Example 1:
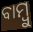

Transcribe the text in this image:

ବାମ୍ବୁ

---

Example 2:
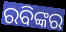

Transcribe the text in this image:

ରବିଙ୍କର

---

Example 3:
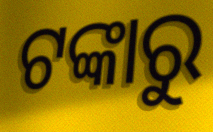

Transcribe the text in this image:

ଟଙ୍କାରୁ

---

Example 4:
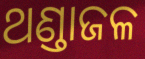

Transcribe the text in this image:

ଥଣ୍ଡାଜଳ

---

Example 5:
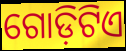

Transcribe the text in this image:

ଗୋଡ଼ିଟିଏ